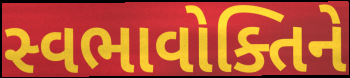
સ્વભાવોક્તિને